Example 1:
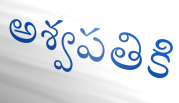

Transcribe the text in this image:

అశ్వపతికి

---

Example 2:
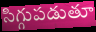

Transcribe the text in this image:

సిగ్గుపడుతూ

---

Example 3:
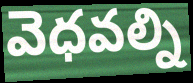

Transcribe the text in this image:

వెధవల్ని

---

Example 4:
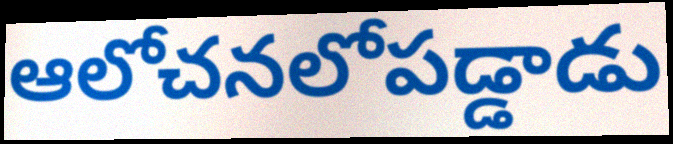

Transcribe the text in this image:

ఆలోచనలోపడ్డాడు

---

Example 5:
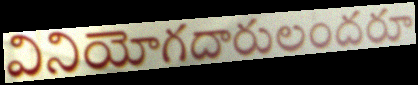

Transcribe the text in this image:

వినియోగదారులందరూ